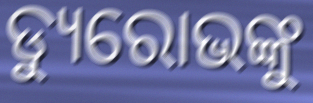
ଡ୍ୟୁରୋଭଙ୍କୁ